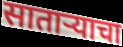
साताऱ्याचा